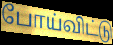
போய்விட்டு